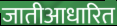
जातीआधारित